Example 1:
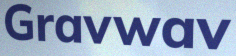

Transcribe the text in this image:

Gravwav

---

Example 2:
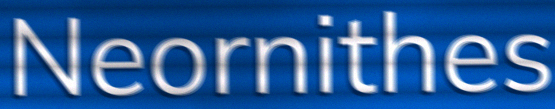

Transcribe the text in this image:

Neornithes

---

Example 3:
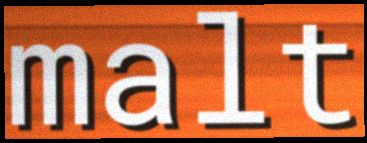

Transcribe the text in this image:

malt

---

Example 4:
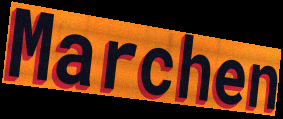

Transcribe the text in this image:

Marchen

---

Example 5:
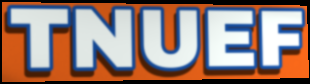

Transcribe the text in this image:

TNUEF